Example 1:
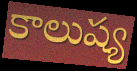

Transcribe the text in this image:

కాలుష్య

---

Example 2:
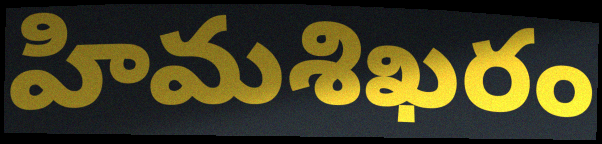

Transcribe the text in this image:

హిమశిఖరం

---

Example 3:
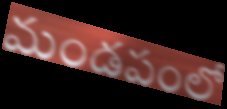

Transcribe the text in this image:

మండపంలో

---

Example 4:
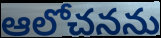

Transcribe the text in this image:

ఆలోచనను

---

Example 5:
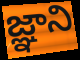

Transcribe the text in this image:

జ్ఞాని